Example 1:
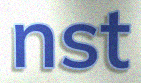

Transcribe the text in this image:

nst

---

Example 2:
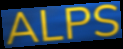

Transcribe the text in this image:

ALPS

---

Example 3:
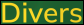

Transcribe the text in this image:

Divers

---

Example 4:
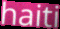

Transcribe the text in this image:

haiti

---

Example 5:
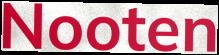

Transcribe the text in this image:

Nooten